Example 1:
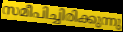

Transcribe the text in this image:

സമീപിച്ചിരിക്കുന്നു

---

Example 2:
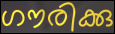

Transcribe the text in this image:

ഗൗരിക്കു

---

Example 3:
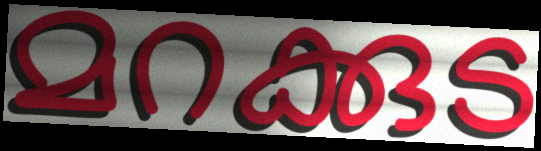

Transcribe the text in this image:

മറക്കുട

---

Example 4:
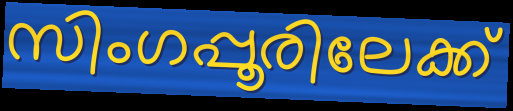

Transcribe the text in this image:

സിംഗപ്പൂരിലേക്ക്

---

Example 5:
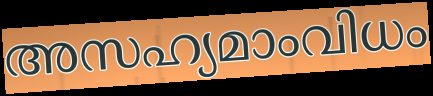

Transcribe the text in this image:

അസഹ്യമാംവിധം